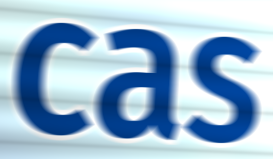
cas